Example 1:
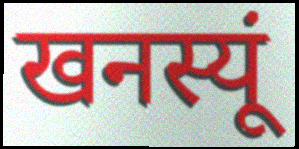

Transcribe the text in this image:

खनस्यूं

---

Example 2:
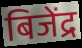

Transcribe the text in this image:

बिजेंद्र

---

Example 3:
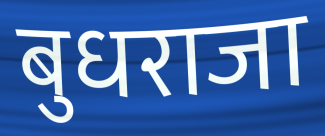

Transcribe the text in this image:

बुधराजा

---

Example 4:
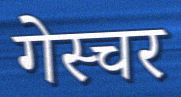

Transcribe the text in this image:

गेस्चर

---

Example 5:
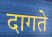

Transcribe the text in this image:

दागते